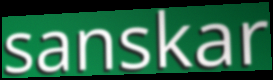
sanskar